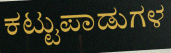
ಕಟ್ಟುಪಾಡುಗಳ